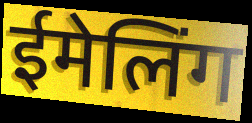
ईमेलिंग